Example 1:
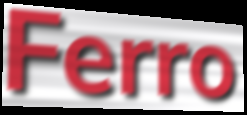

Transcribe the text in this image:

Ferro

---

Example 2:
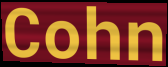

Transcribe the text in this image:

Cohn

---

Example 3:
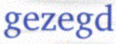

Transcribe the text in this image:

gezegd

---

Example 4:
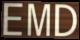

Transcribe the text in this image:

EMD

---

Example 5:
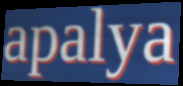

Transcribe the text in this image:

apalya